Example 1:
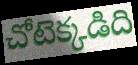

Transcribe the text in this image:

చోటెక్కడిది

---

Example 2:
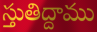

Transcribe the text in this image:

స్తుతిద్దాము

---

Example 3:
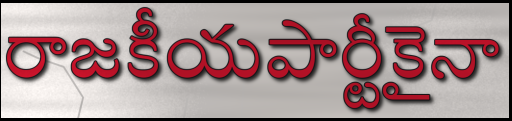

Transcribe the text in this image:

రాజకీయపార్టీకైనా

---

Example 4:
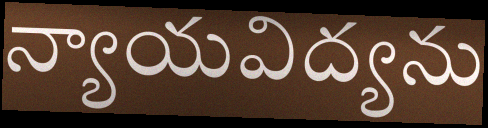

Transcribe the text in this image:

న్యాయవిద్యను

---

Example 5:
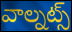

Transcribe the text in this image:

వాల్నట్స్